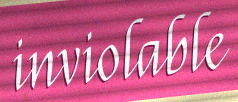
inviolable